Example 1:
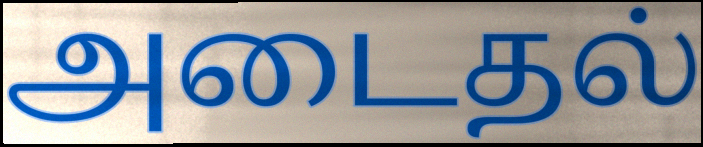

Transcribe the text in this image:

அடைதல்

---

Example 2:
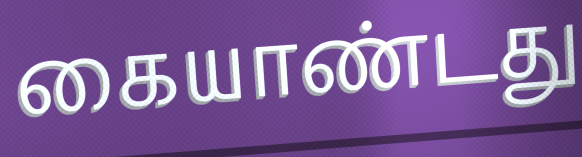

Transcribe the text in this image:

கையாண்டது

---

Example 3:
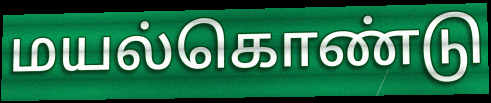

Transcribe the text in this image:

மயல்கொண்டு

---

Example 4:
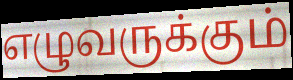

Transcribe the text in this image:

எழுவருக்கும்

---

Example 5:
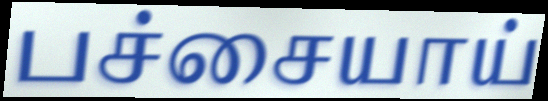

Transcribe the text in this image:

பச்சையாய்